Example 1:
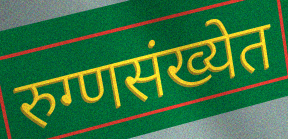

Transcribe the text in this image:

रुग्णसंख्येत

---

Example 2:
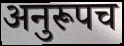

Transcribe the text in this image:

अनुरूपच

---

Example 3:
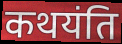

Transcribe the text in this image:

कथयंति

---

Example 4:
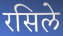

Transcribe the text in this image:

रसिले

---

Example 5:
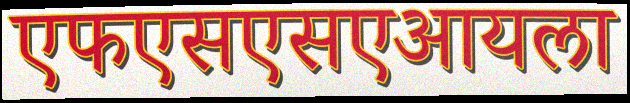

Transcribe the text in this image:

एफएसएसएआयला